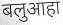
बलुआहा